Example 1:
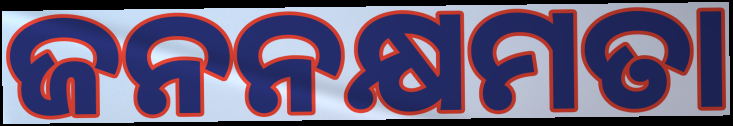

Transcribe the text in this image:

ଜନନକ୍ଷମତା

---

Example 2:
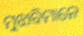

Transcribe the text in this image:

ମୁଝାବିମାନେ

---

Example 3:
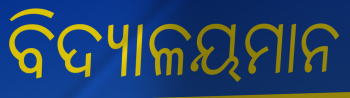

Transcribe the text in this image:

ବିଦ୍ୟାଳୟମାନ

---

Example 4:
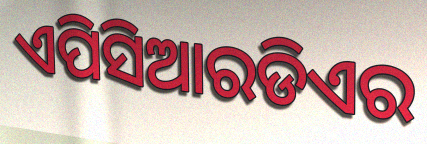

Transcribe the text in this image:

ଏପିସିଆରଡିଏର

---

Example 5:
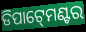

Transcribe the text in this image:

ଡିପାଟ୍‍ମେଣ୍ଟର